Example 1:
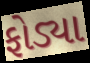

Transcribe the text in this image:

ફોડ્યા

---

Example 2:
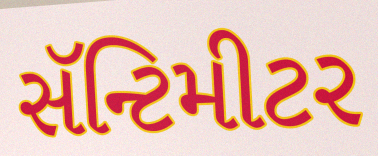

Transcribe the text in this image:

સૅન્ટિમીટર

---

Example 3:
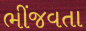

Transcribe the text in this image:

ભીંજવતા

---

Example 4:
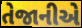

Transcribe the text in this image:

તેજાનીએ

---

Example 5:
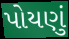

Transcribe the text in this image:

પોયણું